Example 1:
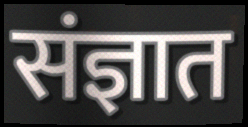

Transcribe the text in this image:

संज्ञात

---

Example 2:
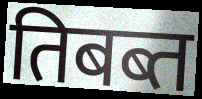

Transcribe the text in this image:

तिबब्त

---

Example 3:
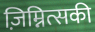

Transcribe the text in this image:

ज़िम्नित्सकी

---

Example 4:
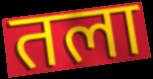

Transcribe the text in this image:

तला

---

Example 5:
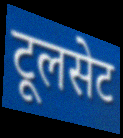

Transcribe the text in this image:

टूलसेट